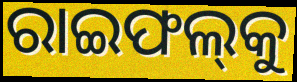
ରାଇଫଲ୍‍କୁ